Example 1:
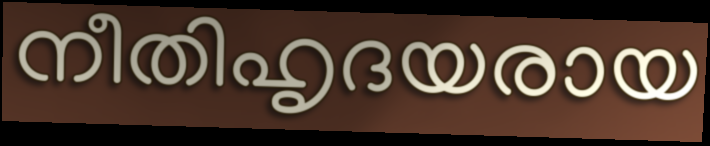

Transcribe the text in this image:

നീതിഹൃദയരായ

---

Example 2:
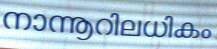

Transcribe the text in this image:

നാന്നൂറിലധികം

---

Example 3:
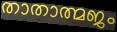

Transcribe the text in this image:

താതാത്മജം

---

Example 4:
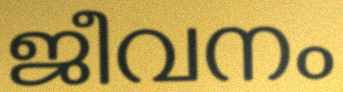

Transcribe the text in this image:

ജീവനം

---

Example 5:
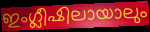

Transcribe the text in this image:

ഇംഗ്ലീഷിലായാലും